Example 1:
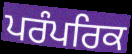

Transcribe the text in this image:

ਪਰੰਪਰਿਕ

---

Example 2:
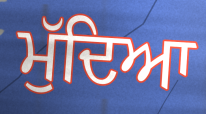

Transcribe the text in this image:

ਮੁੱਦਿਆ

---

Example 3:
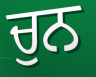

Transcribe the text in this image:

ਚੁਨ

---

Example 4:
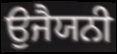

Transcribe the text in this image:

ਉਜੈਯਨੀ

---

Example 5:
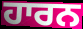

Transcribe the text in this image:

ਹਾਰਨ